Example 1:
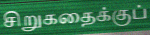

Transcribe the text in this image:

சிறுகதைக்குப்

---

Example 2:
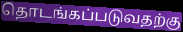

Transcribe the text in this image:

தொடங்கப்படுவதற்கு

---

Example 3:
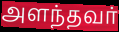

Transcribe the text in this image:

அளந்தவர்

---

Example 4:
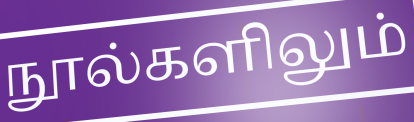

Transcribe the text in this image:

நூல்களிலும்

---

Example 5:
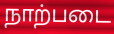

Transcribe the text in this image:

நாற்படை